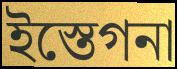
ইস্তেগনা